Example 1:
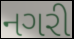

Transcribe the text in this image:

નગરી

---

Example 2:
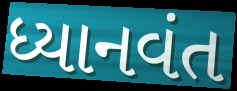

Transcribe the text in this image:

ધ્યાનવંત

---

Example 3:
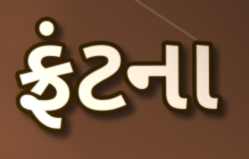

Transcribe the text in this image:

ફ્રંટના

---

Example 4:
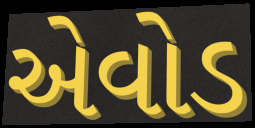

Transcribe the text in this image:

એવોડ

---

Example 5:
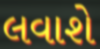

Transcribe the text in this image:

લવાશે